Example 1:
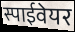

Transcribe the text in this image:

स्पाईवेयर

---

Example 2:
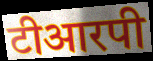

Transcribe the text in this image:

टीआरपी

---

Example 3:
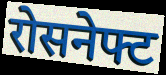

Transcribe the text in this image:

रोसनेफ्ट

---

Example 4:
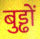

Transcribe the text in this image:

बुड्ढों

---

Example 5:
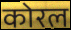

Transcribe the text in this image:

कोरल